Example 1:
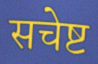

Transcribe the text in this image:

सचेष्ट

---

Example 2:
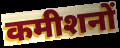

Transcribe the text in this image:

कमीशनों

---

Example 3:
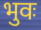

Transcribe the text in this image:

भुवः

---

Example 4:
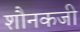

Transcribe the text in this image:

शौनकजी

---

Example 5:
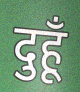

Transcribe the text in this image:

दुहूँ